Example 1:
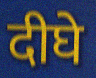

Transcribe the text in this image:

दीघे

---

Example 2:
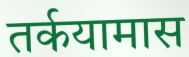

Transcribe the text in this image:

तर्कयामास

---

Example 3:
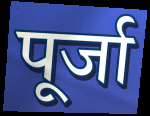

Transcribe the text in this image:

पूर्जा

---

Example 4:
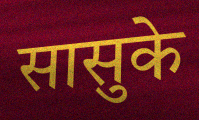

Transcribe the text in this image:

सासुके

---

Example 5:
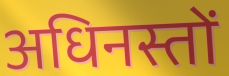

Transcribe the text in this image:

अधिनस्तों